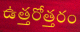
ఉత్తరోత్తరం